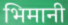
भिमानी